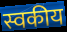
स्वकीय